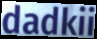
dadkii